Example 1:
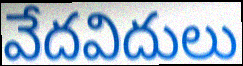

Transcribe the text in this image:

వేదవిదులు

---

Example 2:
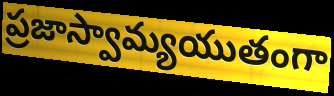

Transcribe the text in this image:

ప్రజాస్వామ్యయుతంగా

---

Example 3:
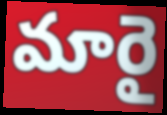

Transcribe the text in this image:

మారై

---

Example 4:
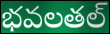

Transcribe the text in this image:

భవలతల్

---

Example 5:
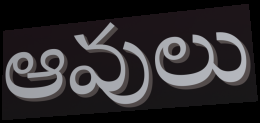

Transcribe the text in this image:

ఆవులు